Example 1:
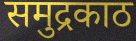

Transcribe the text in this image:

समुद्रकाठ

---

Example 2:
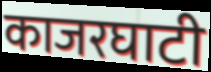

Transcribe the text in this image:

काजरघाटी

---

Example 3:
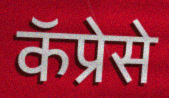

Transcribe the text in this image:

कॅप्रेसे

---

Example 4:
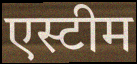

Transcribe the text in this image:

एस्टीम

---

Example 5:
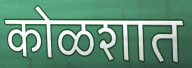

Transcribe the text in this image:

कोळशात